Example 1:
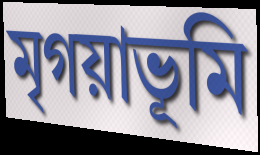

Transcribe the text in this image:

মৃগয়াভূমি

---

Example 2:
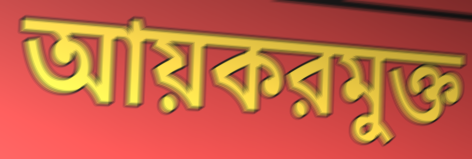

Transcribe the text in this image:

আয়করমুক্ত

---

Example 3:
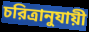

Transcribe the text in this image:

চরিত্রানুযায়ী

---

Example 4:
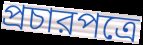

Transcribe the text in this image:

প্রচারপত্রে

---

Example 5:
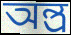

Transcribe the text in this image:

অন্ত্র